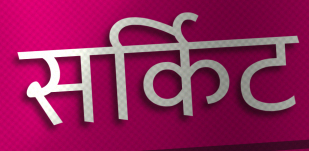
सर्किट